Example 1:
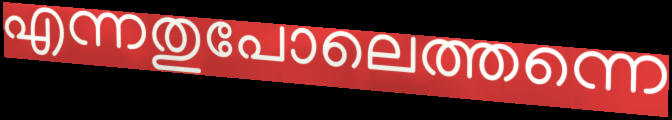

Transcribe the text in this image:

എന്നതുപോലെത്തന്നെ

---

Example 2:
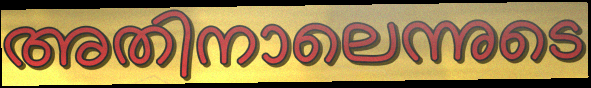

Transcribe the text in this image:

അതിനാലെന്നുടെ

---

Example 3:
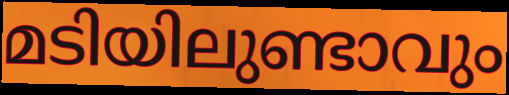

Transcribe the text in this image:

മടിയിലുണ്ടാവും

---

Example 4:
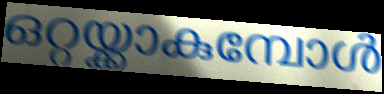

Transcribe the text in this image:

ഒറ്റയ്ക്കാകുമ്പോൾ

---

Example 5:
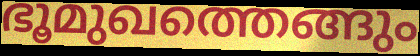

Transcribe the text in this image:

ഭൂമുഖത്തെങ്ങും